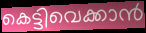
കെട്ടിവെക്കാൻ